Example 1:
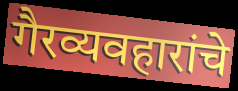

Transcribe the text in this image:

गैरव्यवहारांचे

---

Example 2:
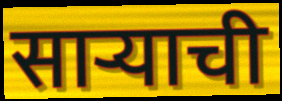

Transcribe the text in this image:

सार्‍याची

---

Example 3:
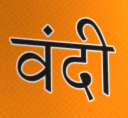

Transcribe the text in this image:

वंदी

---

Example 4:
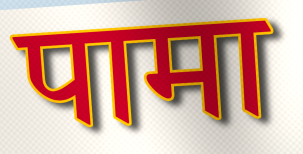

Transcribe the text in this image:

पामा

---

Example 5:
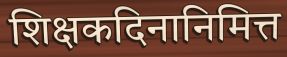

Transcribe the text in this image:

शिक्षकदिनानिमित्त